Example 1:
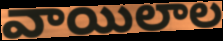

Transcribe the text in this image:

వాయిలాల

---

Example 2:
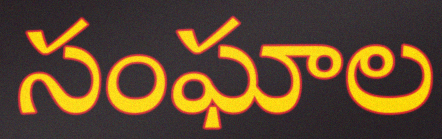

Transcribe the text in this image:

సంఘాల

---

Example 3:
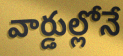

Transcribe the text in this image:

వార్డుల్లోనే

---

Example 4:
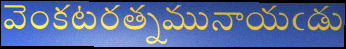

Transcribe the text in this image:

వెంకటరత్నమునాయఁడు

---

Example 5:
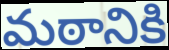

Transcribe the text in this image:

మఠానికి